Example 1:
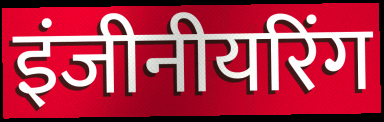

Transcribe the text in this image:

इंजीनीयरिंग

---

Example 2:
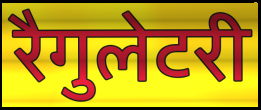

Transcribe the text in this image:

रैगुलेटरी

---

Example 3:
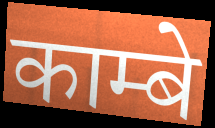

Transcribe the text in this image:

काम्बे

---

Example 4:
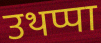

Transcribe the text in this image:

उथप्पा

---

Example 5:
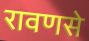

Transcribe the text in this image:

रावणसे